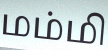
மம்மி